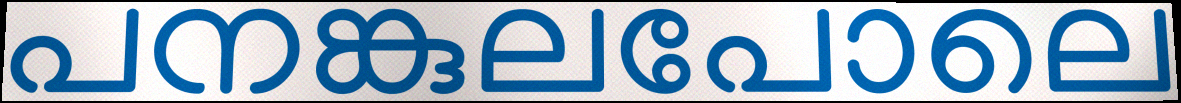
പനങ്കുലപോലെ